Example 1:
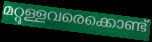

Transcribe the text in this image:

മറ്റുള്ളവരെക്കൊണ്ട്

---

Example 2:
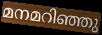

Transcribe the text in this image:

മനമറിഞ്ഞു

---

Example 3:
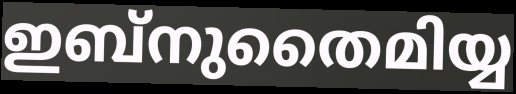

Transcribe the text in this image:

ഇബ്നുതൈമിയ്യ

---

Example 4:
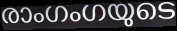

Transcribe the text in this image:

രാംഗംഗയുടെ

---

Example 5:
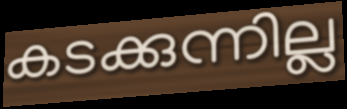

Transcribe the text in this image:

കടക്കുന്നില്ല